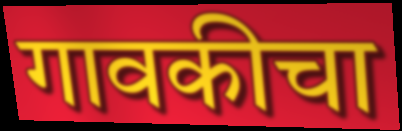
गावकीचा